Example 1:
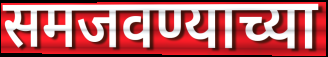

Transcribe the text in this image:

समजवण्याच्या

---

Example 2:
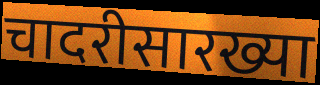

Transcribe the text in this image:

चादरीसारख्या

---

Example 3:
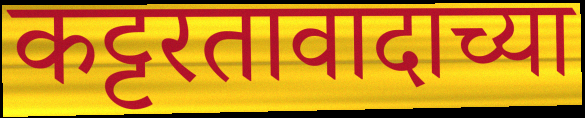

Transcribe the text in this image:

कट्टरतावादाच्या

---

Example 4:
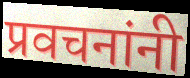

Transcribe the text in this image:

प्रवचनांनी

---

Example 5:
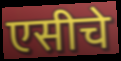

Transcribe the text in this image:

एसीचे